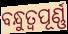
ବନ୍ଧୁତ୍ଵପୂର୍ଣ୍ଣ